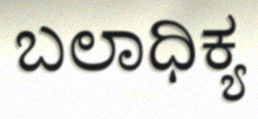
ಬಲಾಧಿಕ್ಯ